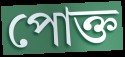
পোক্ত